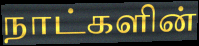
நாட்களின்